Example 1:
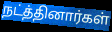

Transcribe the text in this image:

நட்த்தினார்கள்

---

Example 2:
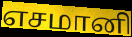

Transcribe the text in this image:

எசமானி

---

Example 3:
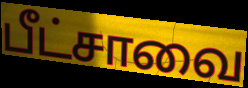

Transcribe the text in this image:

பீட்சாவை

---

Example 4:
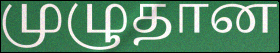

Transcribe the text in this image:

முழுதான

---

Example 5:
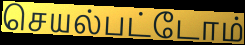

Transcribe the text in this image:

செயல்பட்டோம்